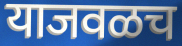
याजवळच